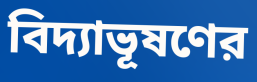
বিদ্যাভূষণের